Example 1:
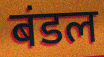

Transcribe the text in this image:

बंडल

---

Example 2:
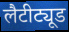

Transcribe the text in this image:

लैटीट्यूड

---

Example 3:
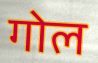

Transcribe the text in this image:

गोल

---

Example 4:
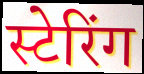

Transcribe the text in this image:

स्टेरिंग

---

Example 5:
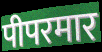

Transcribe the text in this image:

पीपरमार